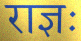
राज्ञः